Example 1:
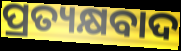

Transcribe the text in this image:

ପ୍ରତ୍ୟକ୍ଷବାଦ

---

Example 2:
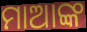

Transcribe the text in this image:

ମାଆଙ୍କ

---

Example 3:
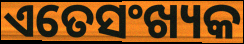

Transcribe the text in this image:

ଏତେସଂଖ୍ୟକ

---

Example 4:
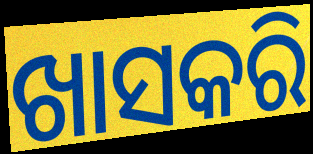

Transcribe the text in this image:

ଖାସକରି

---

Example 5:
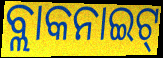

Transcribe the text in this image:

ବ୍ଲାକନାଇଟ୍